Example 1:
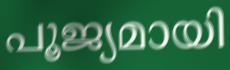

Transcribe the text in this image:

പൂജ്യമായി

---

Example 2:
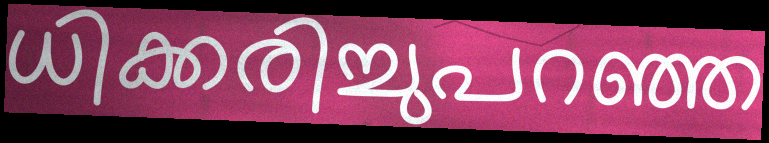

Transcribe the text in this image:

ധിക്കരിച്ചുപറഞ്ഞ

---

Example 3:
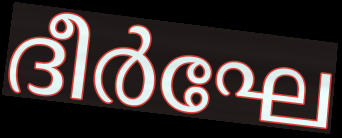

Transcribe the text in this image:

ദീർഘേ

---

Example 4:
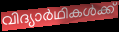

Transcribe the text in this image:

വിദ്യാർഥികൾക്ക്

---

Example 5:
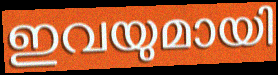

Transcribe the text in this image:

ഇവയുമായി